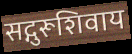
सद्गुरूशिवाय